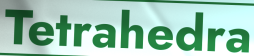
Tetrahedra